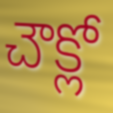
చౌక్లో